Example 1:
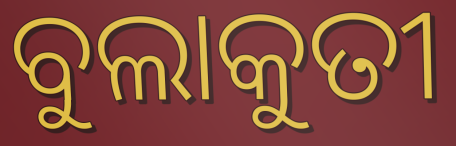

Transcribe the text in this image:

ବୁଲାକୁତୀ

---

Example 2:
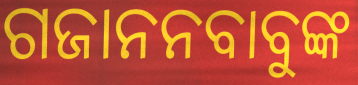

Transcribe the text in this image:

ଗଜାନନବାବୁଙ୍କ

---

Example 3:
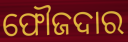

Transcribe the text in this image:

ଫୌଜଦାର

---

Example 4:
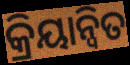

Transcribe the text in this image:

କ୍ରିୟାନ୍ୱିତ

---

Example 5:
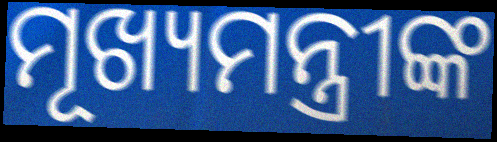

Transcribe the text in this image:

ମୂଖ୍ୟମନ୍ତ୍ରୀଙ୍କ